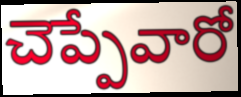
చెప్పేవారో